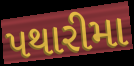
પથારીમા